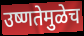
उष्णतेमुळेच